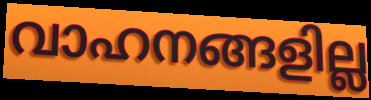
വാഹനങ്ങളില്ല